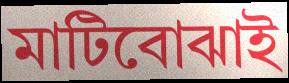
মাটিবোঝাই